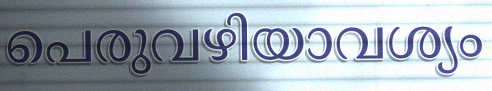
പെരുവഴിയാവശ്യം